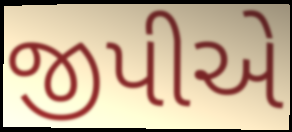
જીપીએ